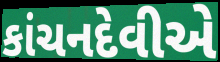
કાંચનદેવીએ